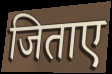
जिताए